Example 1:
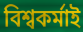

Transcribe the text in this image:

বিশ্বকর্মাই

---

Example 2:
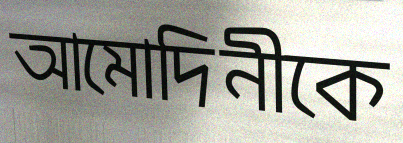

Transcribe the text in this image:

আমোদিনীকে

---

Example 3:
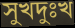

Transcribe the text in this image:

সুখদুঃখ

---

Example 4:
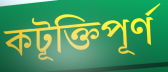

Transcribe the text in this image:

কটূক্তিপূর্ণ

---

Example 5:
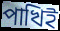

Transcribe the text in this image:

পাখিই